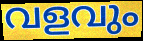
വളവും